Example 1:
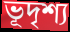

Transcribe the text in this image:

ভূদৃশ্য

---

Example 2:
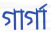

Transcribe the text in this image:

গার্গা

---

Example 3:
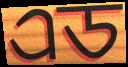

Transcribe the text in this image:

এড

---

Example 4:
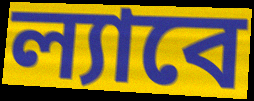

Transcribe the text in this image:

ল্যাবে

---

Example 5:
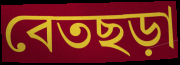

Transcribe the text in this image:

বেতছড়া